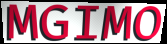
MGIMO